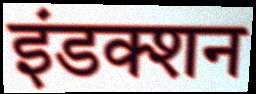
इंडक्शन